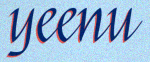
yeenu